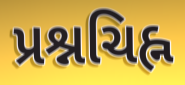
પ્રશ્નચિહ્ન